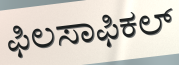
ಫಿಲಸಾಫಿಕಲ್